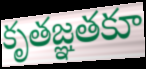
కృతజ్ఞతకూ